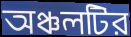
অঞ্চলটির